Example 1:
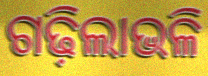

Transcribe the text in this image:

ଗଢ଼ିଲାଭଳି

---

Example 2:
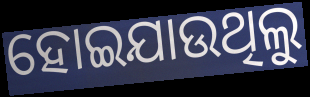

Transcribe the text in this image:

ହୋଇଯାଉଥିଲୁ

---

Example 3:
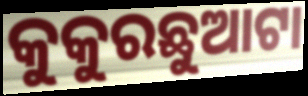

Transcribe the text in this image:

କୁକୁରଛୁଆଟା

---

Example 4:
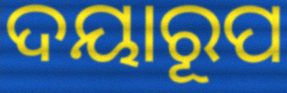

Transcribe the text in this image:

ଦୟାରୂପ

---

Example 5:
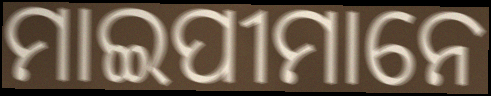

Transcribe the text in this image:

ମାଇପୀମାନେ